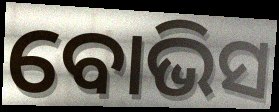
ବୋଭିସ